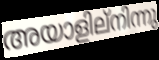
അയാളില്നിന്നു